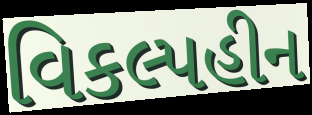
વિકલ્પહીન